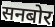
सनबोर